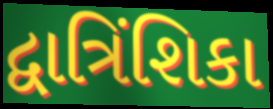
દ્વાત્રિંશિકા